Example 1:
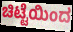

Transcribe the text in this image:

ಚಿಟ್ಟೆಯಿಂದ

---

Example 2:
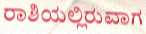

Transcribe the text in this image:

ರಾಶಿಯಲ್ಲಿರುವಾಗ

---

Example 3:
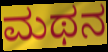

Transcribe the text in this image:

ಮಥನ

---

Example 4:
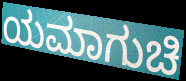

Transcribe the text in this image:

ಯಮಾಗುಚಿ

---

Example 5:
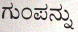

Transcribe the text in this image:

ಗುಂಪನ್ನು